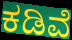
ಕಡಿವೆ